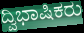
ದ್ವಿಭಾಷಿಕರು